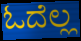
ಓದೆಲ್ಲ